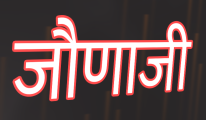
जौणाजी